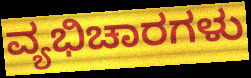
ವ್ಯಭಿಚಾರಗಳು